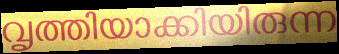
വൃത്തിയാക്കിയിരുന്ന